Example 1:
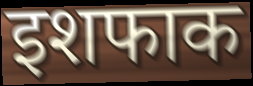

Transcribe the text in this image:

इशफाक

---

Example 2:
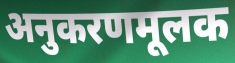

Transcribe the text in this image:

अनुकरणमूलक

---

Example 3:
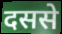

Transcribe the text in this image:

दससे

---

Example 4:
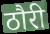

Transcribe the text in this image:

ठौरी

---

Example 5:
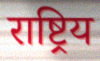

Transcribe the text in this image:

राष्ट्रिय